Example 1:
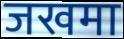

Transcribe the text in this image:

जखमा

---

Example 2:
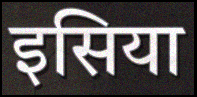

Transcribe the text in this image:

इसिया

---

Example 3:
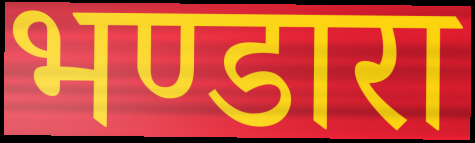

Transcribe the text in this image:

भण्डारा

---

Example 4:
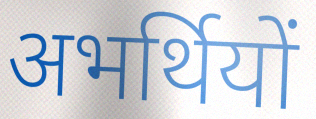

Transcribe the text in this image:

अभर्थियों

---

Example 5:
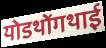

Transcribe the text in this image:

योडथोंगथाई